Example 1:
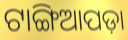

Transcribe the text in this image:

ଟାଙ୍ଗିଆପଡ଼ା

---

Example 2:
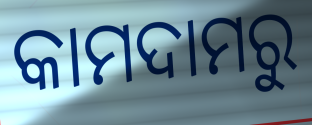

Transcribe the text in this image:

କାମଦାମରୁ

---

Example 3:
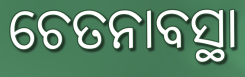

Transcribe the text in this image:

ଚେତନାବସ୍ଥା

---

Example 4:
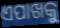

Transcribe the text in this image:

ଏପାଖକୁ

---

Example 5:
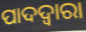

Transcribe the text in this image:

ପାଦଦ୍ଵାରା